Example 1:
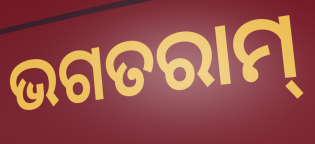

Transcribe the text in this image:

ଭଗତରାମ୍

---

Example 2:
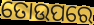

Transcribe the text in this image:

ତୋଉପରେ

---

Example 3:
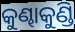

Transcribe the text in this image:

କୁଣ୍ଢାକୁଣ୍ଡି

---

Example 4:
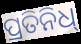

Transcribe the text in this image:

ପ୍ରତିନିଧ୍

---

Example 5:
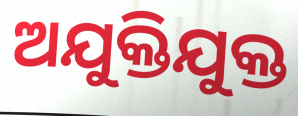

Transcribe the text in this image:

ଅଯୁକ୍ତିଯୁକ୍ତ